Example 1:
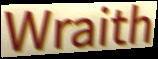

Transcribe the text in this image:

Wraith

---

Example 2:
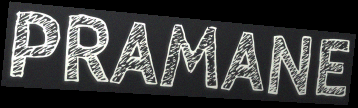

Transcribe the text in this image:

PRAMANE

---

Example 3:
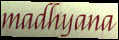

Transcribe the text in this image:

madhyana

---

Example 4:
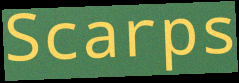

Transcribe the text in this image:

Scarps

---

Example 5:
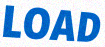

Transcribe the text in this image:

LOAD